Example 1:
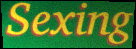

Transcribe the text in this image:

Sexing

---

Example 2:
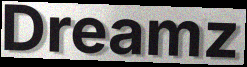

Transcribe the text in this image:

Dreamz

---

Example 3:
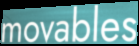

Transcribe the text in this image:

movables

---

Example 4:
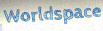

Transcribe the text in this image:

Worldspace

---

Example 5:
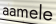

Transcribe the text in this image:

aamele